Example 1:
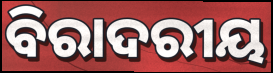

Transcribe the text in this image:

ବିରାଦରୀୟ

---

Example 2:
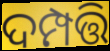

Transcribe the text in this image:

ଦମ୍ପତ୍ତି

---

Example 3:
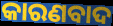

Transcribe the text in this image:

କାରଣବାଦ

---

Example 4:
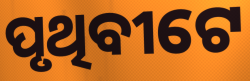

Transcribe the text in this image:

ପୃଥିବୀଟେ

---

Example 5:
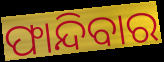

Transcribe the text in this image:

ଫାନ୍ଦିବାର